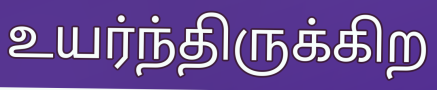
உயர்ந்திருக்கிற